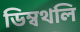
ডিম্বথলি